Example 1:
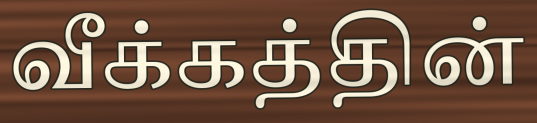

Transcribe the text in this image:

வீக்கத்தின்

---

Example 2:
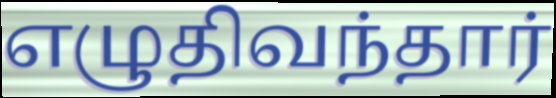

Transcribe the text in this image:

எழுதிவந்தார்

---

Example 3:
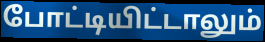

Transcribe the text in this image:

போட்டியிட்டாலும்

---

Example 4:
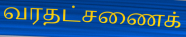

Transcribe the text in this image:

வரதட்சணைக்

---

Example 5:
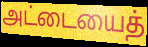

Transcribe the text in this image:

அட்டையைத்